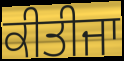
ਕੀਤੀਜਾ